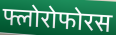
फ्लोरोफोरस